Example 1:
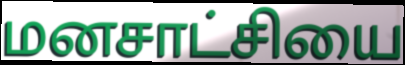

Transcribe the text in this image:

மனசாட்சியை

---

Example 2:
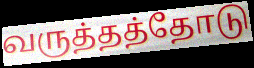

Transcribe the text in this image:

வருத்தத்தோடு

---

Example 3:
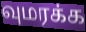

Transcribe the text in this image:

வுமரக்க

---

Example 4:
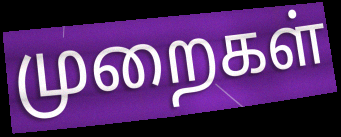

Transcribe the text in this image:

முறைகள்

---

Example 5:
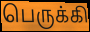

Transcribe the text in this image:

பெருக்கி